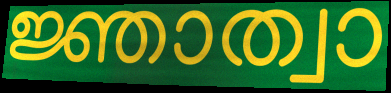
ജ്ഞാത്വാ